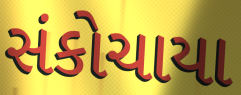
સંકોચાયા